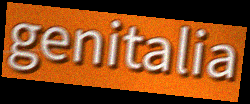
genitalia